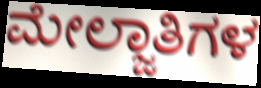
ಮೇಲ್ಜಾತಿಗಳ